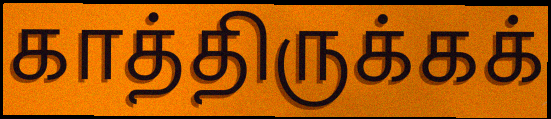
காத்திருக்கக்